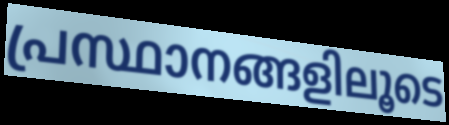
പ്രസ്ഥാനങ്ങളിലൂടെ